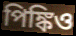
পিঙ্কিও